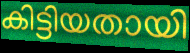
കിട്ടിയതായി